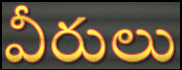
వీరులు